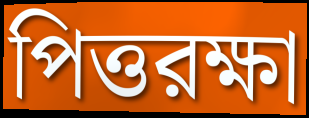
পিত্তরক্ষা